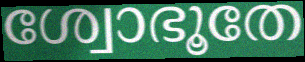
ശ്വോഭൂതേ